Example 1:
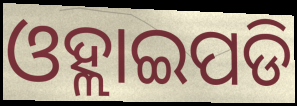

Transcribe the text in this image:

ଓହ୍ଲାଇପଡି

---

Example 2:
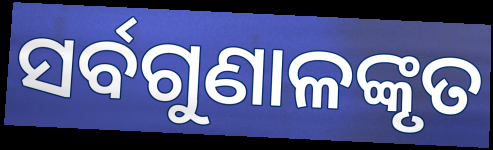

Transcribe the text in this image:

ସର୍ବଗୁଣାଳଙ୍କୃତ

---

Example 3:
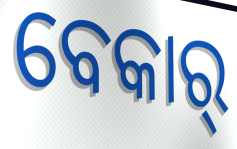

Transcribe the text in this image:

ବେକାର୍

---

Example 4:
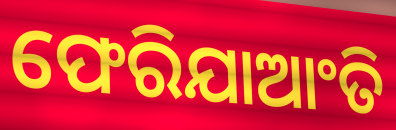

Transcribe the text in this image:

ଫେରିଯାଆଂତି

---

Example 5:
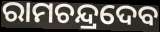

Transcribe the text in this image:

ରାମଚନ୍ଦ୍ରଦେବ